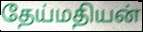
தேய்மதியன்